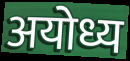
अयोध्य